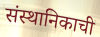
संस्थानिकाची